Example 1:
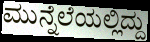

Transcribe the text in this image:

ಮುನ್ನೆಲೆಯಲ್ಲಿದ್ದು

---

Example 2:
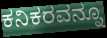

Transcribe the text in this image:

ಕನಿಕರವನ್ನೂ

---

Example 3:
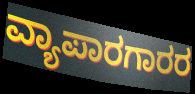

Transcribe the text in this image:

ವ್ಯಾಪಾರಗಾರರ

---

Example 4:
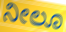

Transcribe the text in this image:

ನೀಲೂ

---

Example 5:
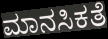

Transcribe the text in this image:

ಮಾನಸಿಕತೆ